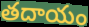
తదాయం